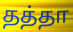
தத்தா